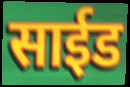
साईड